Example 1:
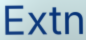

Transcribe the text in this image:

Extn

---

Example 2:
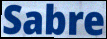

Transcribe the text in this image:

Sabre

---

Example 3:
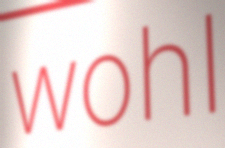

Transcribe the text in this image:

wohl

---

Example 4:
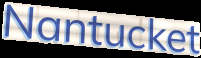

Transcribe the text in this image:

Nantucket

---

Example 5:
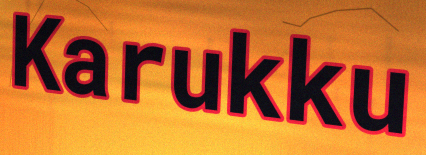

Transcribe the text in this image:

Karukku